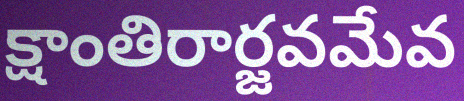
క్షాంతిరార్జవమేవ